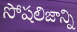
సోషలిజాన్ని